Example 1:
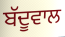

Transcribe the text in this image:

ਬੱਦੂਵਾਲ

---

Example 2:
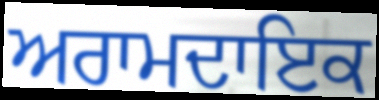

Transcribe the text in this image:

ਅਰਾਮਦਾਇਕ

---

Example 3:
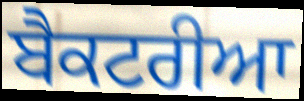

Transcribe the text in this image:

ਬੈਕਟਰੀਆ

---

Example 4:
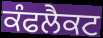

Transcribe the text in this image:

ਕੰਫਲੈਕਟ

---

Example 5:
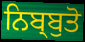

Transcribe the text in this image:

ਨਿਬ੍ਬੁਤੋ